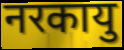
नरकायु